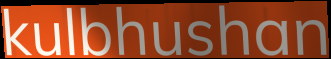
kulbhushan